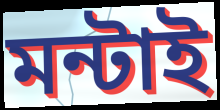
মন্টাই